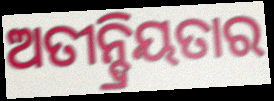
ଅତୀନ୍ଦ୍ରିୟତାର